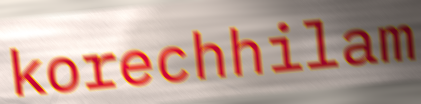
korechhilam